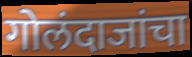
गोलंदाजांचा